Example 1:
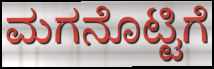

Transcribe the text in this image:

ಮಗನೊಟ್ಟಿಗೆ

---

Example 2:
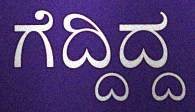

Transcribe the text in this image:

ಗೆದ್ದಿದ್ದ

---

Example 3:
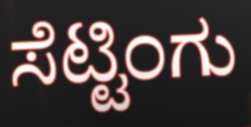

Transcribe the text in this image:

ಸೆಟ್ಟಿಂಗು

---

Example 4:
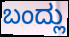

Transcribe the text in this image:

ಬಂದ್ಲು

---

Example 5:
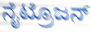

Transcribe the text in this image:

ನೈಟ್ರೊಜನ್